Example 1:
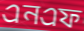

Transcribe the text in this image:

এনএফ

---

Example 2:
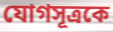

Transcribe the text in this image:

যোগসূত্রকে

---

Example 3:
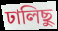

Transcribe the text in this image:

ঢালিছু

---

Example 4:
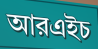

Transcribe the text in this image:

আরএইচ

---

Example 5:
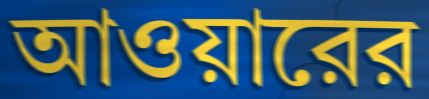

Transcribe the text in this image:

আওয়ারের